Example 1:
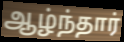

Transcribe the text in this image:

ஆழ்ந்தார்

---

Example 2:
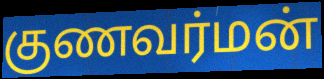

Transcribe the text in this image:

குணவர்மன்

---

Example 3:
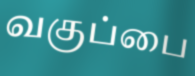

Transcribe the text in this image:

வகுப்பை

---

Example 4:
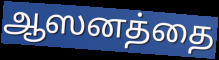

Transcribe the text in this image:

ஆஸனத்தை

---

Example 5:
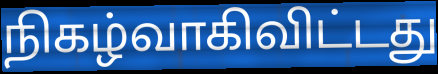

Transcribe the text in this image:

நிகழ்வாகிவிட்டது